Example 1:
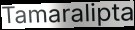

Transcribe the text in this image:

Tamaralipta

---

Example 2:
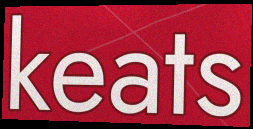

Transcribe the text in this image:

keats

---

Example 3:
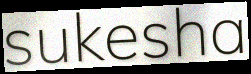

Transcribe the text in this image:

sukesha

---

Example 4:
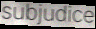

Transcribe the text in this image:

subjudice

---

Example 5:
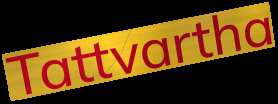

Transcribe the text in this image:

Tattvartha